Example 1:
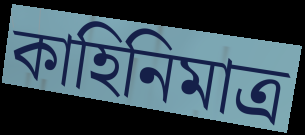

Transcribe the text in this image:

কাহিনিমাত্র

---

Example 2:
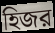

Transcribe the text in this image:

হিজর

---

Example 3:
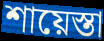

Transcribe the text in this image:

শায়েস্তা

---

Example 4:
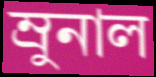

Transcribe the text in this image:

ম্রুনাল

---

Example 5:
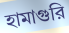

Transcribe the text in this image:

হামাগুরি